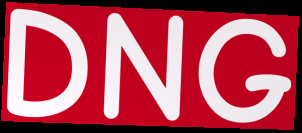
DNG